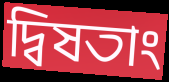
দ্বিষতাং